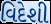
વિદેશી